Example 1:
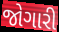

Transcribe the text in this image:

જોગારી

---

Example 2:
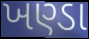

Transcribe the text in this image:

ખણ્ડા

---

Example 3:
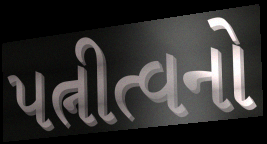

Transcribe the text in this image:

પત્નીત્વનો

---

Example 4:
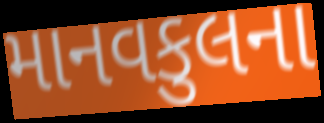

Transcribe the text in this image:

માનવકુલના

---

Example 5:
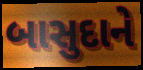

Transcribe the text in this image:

બાસુદાને